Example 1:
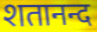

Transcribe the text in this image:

शतानन्द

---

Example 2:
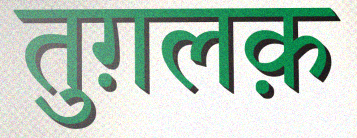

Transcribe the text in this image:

तुग़लक़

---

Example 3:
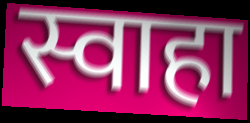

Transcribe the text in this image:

स्‍वाहा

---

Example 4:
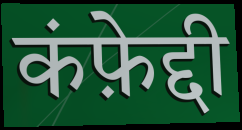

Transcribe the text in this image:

कंफ़ेद्दी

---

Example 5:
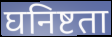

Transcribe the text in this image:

घनिष्टता